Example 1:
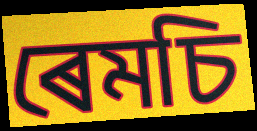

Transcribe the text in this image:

ৰেমচি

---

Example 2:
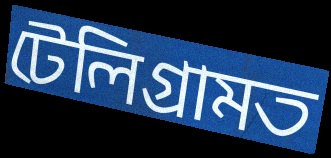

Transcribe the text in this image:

টেলিগ্ৰামত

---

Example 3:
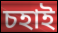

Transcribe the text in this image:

চহাই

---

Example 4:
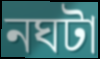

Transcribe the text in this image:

নঘটা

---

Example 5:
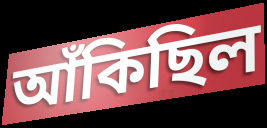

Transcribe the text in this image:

আঁকিছিল